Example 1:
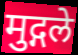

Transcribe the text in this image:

मुद्गले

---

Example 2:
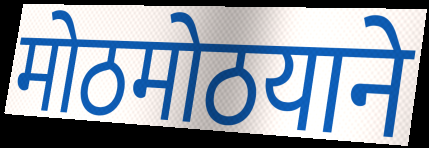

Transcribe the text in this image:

मोठमोठयाने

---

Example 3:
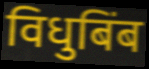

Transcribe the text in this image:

विधुबिंब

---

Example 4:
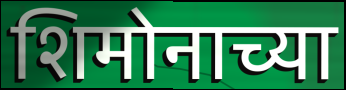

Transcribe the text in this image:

शिमोनाच्या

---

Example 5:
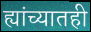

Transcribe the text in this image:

ह्यांच्यातही